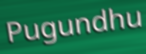
Pugundhu